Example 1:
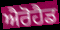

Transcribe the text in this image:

ਐਰੋਹੈਡ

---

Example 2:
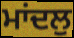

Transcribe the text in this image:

ਮਾਂਦਲੁ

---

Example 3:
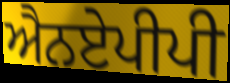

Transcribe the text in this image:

ਐਨਏਪੀਪੀ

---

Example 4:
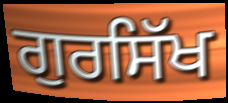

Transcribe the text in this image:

ਗੁਰਸਿੱਖ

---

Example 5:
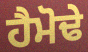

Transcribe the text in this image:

ਹੈਮੋਢੇ